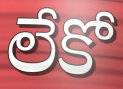
లేకో